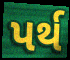
પર્થ